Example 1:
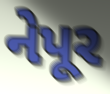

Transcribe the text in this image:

નેપૂર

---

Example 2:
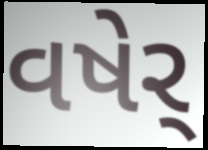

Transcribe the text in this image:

વષેર્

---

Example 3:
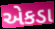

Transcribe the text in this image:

એકડા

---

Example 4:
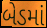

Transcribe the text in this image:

બેડમાં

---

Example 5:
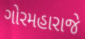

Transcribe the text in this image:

ગોરમહારાજે